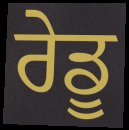
ਰੇਡੂ